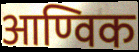
आण्विक